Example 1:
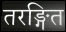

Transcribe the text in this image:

तरङ्गित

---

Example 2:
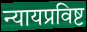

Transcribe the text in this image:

न्यायप्रविष्ट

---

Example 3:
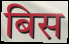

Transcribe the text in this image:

बिस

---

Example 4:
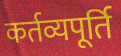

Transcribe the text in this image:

कर्तव्यपूर्ति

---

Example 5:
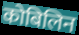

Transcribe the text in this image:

कोबिलिन